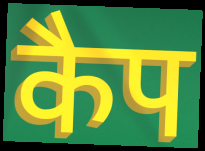
कैप